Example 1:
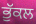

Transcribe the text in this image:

ਭੁੱਕਲ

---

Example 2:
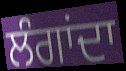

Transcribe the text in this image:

ਲੰਗਾਂਦਾ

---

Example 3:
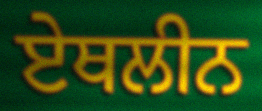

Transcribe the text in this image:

ਏਥਲੀਨ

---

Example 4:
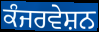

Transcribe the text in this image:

ਕੰਜਰਵੇਸ਼ਨ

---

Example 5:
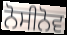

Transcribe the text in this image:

ਨੋਸੀਨੋਵ